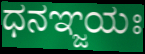
ಧನಞ್ಜಯಃ